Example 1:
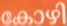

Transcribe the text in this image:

കോഴി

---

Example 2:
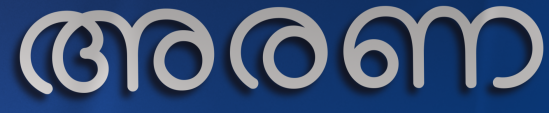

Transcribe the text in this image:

അരണ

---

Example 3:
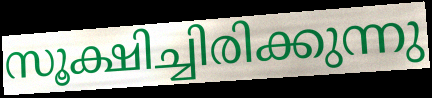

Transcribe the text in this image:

സൂക്ഷിച്ചിരിക്കുന്നു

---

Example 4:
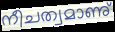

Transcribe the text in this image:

നീചത്വമാണു്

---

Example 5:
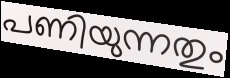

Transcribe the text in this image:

പണിയുന്നതും